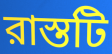
রাস্তটি